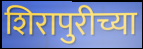
शिरापुरीच्या